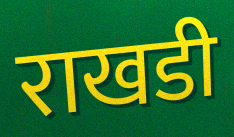
राखडी